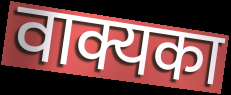
वाक्यका